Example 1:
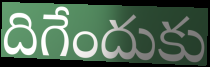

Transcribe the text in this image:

దిగేందుకు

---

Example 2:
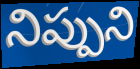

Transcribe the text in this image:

నిప్పుని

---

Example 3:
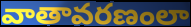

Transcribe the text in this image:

వాతావరణంలా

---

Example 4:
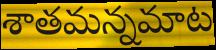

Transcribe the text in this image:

శాతమన్నమాట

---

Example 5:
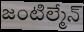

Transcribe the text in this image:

జంటిల్మేన్